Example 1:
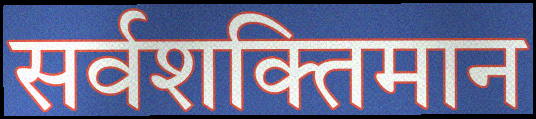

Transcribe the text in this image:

सर्वशक्‍तिमान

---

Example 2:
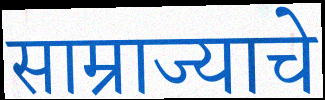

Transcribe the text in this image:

साम्राज्याचे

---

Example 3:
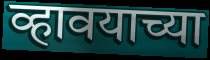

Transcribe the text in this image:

व्हावयाच्या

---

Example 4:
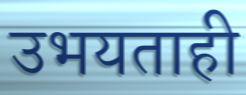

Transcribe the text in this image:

उभयताही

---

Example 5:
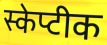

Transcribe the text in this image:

स्केप्टीक